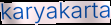
karyakarta